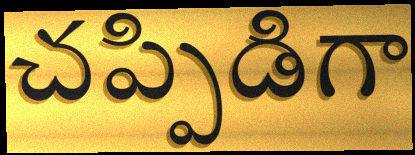
చప్పిడిగా